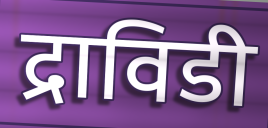
द्राविडी